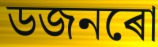
ডজনৰো